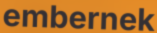
embernek